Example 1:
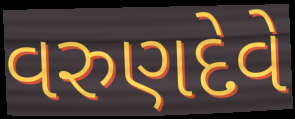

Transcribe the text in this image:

વરુણદેવે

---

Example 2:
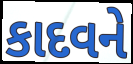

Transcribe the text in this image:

કાદવને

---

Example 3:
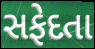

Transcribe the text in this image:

સફેદતા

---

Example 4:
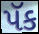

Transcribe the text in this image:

પૅક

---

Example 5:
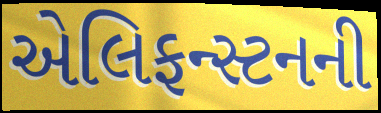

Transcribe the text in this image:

એલિફન્સ્ટનની